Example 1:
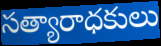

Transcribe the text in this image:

సత్యారాధకులు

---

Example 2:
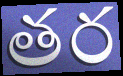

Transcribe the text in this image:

తర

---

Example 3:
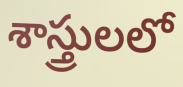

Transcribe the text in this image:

శాస్త్రులలో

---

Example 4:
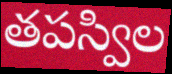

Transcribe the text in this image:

తపస్విల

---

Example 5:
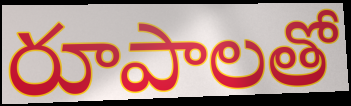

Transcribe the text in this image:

రూపాలతో